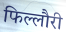
फिल्लौरी